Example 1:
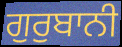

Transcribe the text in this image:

ਗੁਰੁਬਾਨੀ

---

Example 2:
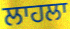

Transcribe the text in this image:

ਲਾਹਲਾ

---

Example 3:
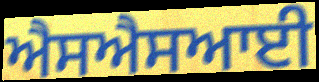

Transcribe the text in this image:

ਐਸਐਸਆਈ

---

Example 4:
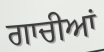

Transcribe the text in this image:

ਗਾਚੀਆਂ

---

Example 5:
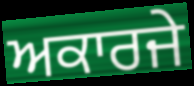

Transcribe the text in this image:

ਅਕਾਰਜੇ